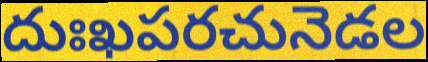
దుఃఖపరచునెడల